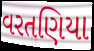
વરતણિયા